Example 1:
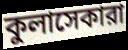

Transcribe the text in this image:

কুলাসেকারা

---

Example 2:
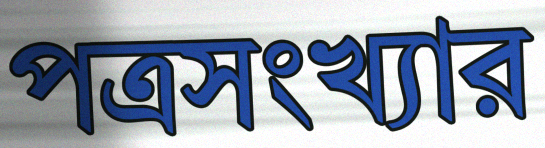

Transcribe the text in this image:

পত্রসংখ্যার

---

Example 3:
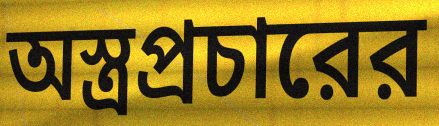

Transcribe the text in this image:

অস্ত্রপ্রচারের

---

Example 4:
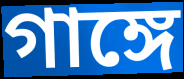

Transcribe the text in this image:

গাঙ্গে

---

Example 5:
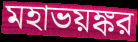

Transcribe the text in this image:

মহাভয়ঙ্কর